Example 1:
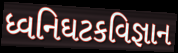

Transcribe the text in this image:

ધ્વનિઘટકવિજ્ઞાન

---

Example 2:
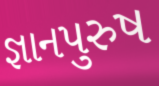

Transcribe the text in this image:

જ્ઞાનપુરુષ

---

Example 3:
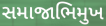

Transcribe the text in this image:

સમાજાભિમુખ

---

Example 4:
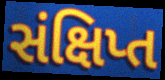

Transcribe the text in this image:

સંક્ષિપ્ત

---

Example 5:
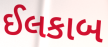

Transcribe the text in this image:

ઈલકાબ